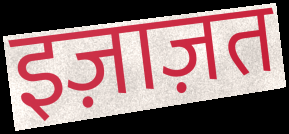
इज़ाज़त